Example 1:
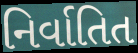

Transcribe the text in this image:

નિર્વાતિત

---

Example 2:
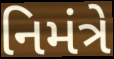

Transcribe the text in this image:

નિમંત્રે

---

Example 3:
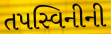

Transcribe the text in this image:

તપસ્વિનીની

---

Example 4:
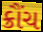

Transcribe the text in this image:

ક્રૌંચ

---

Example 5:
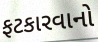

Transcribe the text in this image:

ફટકારવાનો